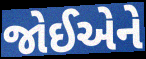
જોઈએને